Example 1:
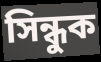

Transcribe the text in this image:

সিন্ধুক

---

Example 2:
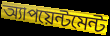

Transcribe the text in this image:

অ্যাপয়েন্টমেন্ট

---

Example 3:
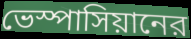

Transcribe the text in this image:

ভেস্পাসিয়ানের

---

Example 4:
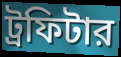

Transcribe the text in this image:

ট্রফিটার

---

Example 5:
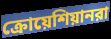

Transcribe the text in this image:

ক্রোয়েশিয়ানরা